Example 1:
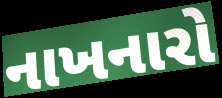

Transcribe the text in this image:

નાખનારો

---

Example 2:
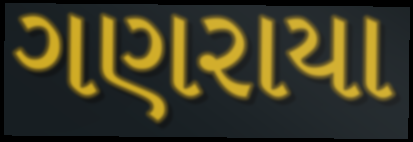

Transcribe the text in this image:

ગણરાયા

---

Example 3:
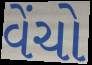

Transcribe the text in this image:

વેંચો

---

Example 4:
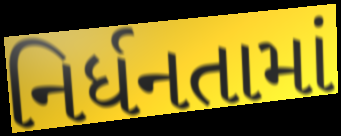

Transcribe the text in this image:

નિર્ધનતામાં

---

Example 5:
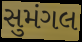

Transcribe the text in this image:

સુમંગલ